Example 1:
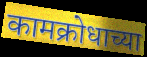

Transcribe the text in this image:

कामक्रोधाच्या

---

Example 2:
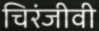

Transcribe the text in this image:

चिरंजीवी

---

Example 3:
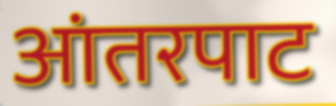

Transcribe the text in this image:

आंतरपाट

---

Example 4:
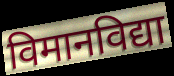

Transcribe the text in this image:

विमानविद्या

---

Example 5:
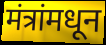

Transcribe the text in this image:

मंत्रांमधून